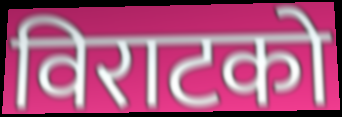
विराटको